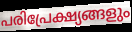
പരിപ്രേക്ഷ്യങ്ങളും